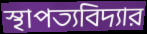
স্থাপত্যবিদ্যার